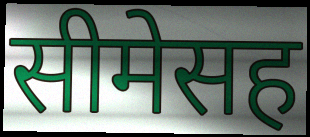
सीमेसह